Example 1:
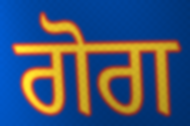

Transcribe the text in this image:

ਗੋਗ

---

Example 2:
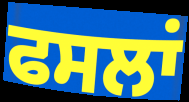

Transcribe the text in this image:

ਫਸਲਾਂ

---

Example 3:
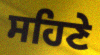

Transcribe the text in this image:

ਸਹਿਣੇ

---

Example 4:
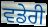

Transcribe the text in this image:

ਵਡੇਰੀ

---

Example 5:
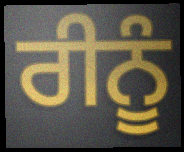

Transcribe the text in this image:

ਰੀਨੂੰ